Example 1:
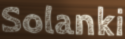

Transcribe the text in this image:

Solanki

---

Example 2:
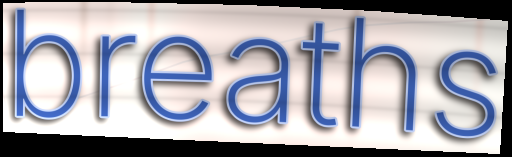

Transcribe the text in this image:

breaths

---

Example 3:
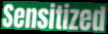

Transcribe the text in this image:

Sensitized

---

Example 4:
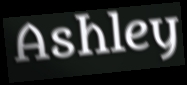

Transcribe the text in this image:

Ashley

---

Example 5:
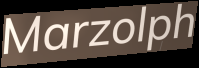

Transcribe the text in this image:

Marzolph